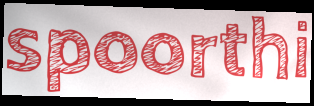
spoorthi